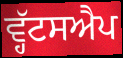
ਵ੍ਹੱਟਸਐਪ